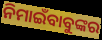
ନିମାଇଁବାବୁଙ୍କର